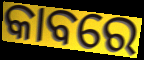
କାବରେ